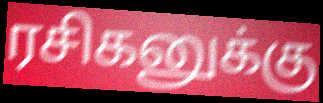
ரசிகனுக்கு